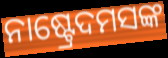
ନାଷ୍ଟ୍ରେଦମସଙ୍କ